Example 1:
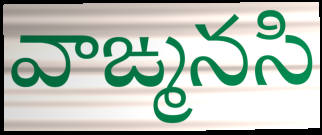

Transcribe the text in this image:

వాఙ్మనసి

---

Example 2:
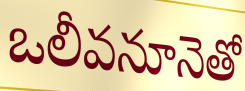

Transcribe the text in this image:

ఒలీవనూనెతో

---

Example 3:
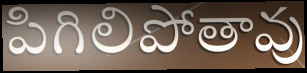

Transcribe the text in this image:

పిగిలిపోతావు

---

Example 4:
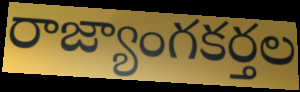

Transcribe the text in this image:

రాజ్యాంగకర్తల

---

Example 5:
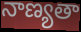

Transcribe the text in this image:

నాణ్యతా